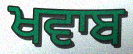
ਖਵਾਬ